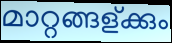
മാറ്റങ്ങള്ക്കും